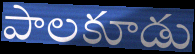
పాలకూడు